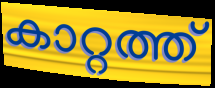
കാറ്റത്ത്